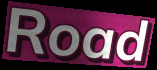
Road